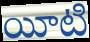
యీటి